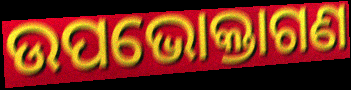
ଉପଭୋକ୍ତାଗଣ